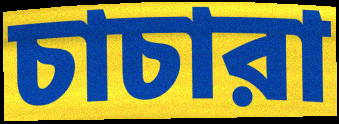
চাচারা